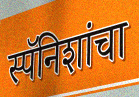
स्पॅनिशांचा